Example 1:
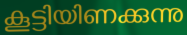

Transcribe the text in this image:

കൂട്ടിയിണക്കുന്നു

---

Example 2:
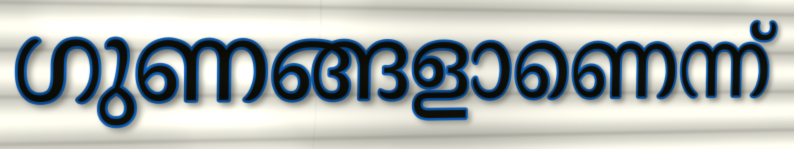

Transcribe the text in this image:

ഗുണങ്ങളാണെന്ന്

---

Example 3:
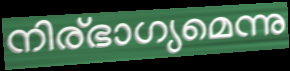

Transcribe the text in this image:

നിര്ഭാഗ്യമെന്നു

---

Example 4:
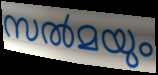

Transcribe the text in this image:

സൽമയും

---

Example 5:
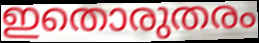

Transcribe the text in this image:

ഇതൊരുതരം